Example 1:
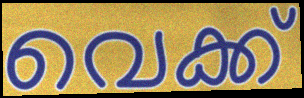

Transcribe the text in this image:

വെക്ക്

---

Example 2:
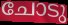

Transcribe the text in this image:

ചോടു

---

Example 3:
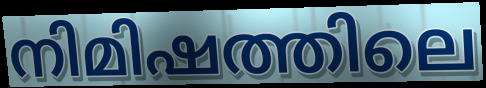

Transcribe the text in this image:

നിമിഷത്തിലെ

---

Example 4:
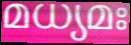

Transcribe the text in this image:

മധ്യമഃ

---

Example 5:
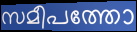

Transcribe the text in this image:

സമീപത്തോ